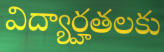
విద్యార్హతలకు